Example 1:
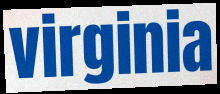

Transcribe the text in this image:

virginia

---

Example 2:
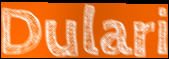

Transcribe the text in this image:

Dulari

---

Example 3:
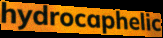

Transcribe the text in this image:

hydrocaphelic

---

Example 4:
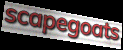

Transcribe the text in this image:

scapegoats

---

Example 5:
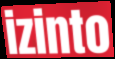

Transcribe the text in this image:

izinto